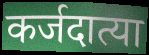
कर्जदात्या